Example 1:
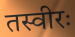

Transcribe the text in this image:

तस्वीरः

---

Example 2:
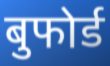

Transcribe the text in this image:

बुफोर्ड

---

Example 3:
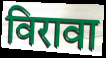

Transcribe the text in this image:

विरावा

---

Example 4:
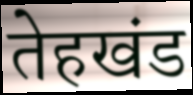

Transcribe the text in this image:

तेहखंड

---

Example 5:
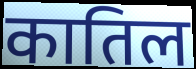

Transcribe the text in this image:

कातिल